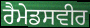
ਰੈਮੇਡਸਵੀਰ